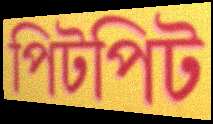
পিটপিট